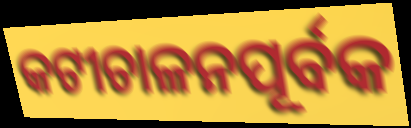
କଟୀଚାଳନପୂର୍ବକ